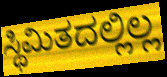
ಸ್ಥಿಮಿತದಲ್ಲಿಲ್ಲ